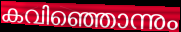
കവിഞ്ഞൊന്നും